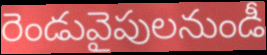
రెండువైపులనుండీ